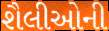
શૈલીઓની